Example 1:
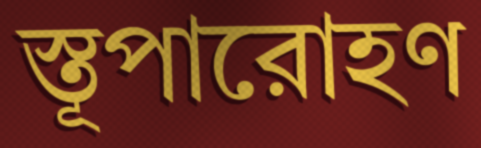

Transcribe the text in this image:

স্তূপারোহণ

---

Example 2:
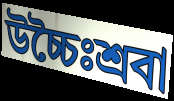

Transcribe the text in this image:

উচ্চৈঃশ্রবা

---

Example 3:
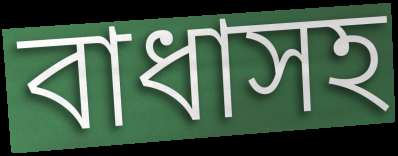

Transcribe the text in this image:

বাধাসহ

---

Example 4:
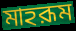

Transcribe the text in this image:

মাহরূম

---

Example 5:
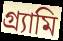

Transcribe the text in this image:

গ্র্যামি